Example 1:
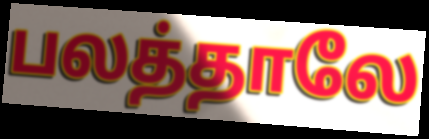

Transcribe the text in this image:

பலத்தாலே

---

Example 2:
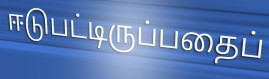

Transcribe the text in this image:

ஈடுபட்டிருப்பதைப்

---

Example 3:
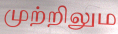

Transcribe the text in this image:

முற்றிலும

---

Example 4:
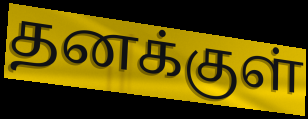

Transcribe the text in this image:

தனக்குள்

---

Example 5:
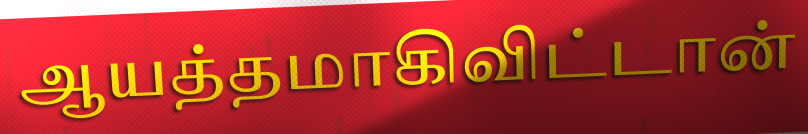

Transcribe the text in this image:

ஆயத்தமாகிவிட்டான்